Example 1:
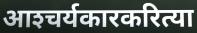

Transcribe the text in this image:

आश्‍चर्यकारकरित्या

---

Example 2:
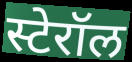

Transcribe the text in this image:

स्टेरॉल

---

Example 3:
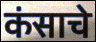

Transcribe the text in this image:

कंसाचे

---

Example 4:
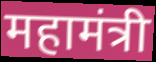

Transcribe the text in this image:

महामंत्री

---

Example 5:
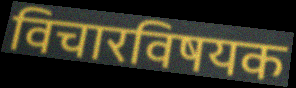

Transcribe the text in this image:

विचारविषयक